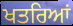
ਖਤਰਿਆਂ